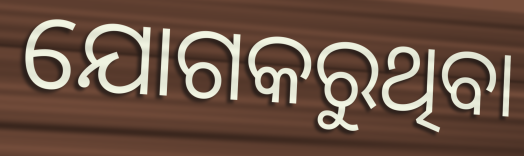
ଯୋଗକରୁଥିବା